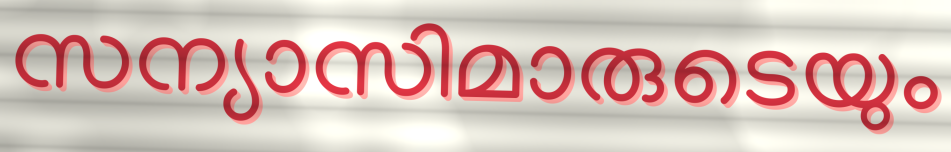
സന്യാസിമാരുടെയും